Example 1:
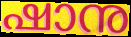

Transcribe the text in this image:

ഷാനു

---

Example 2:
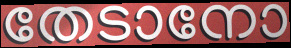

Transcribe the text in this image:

തേടാനോ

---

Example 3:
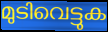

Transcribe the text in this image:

മുടിവെട്ടുക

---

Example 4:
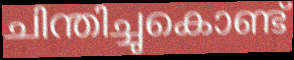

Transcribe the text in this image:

ചിന്തിച്ചുകൊണ്ട്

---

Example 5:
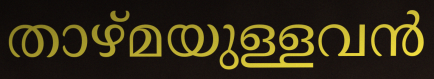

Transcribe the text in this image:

താഴ്മയുള്ളവൻ